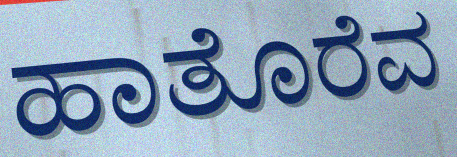
ಹಾತೊರೆವ